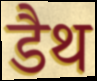
डैथ